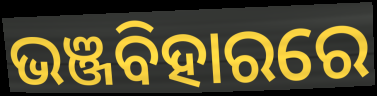
ଭଞ୍ଜବିହାରରେ